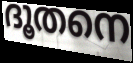
ദൂതനെ